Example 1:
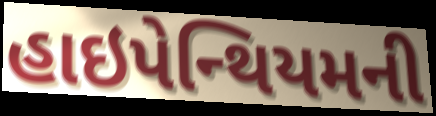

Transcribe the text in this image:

હાઇપેન્થિયમની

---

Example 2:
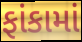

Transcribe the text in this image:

ફાંકામાં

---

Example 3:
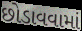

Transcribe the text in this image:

છોડાવવામાં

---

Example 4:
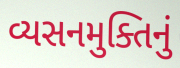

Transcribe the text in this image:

વ્યસનમુક્તિનું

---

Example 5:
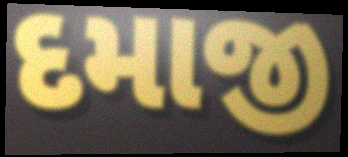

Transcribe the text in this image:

દમાજી